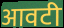
आवटी